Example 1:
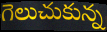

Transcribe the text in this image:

గెలుచుకున్న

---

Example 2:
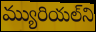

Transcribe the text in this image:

మ్యురియల్‌ని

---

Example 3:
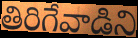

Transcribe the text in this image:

తిరిగేవాడిని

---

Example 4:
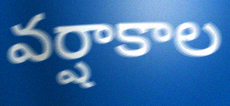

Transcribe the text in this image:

వర్షాకాల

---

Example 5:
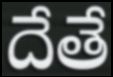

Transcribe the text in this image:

దేతే